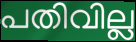
പതിവില്ല